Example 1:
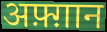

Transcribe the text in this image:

अफ़्ग़ान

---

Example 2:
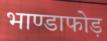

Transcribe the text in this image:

भाण्डाफोड़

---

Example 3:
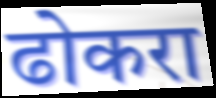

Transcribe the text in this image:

ढोकरा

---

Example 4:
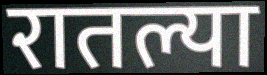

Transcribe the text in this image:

रातल्या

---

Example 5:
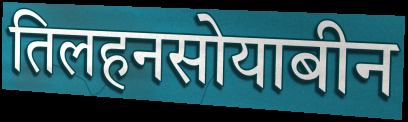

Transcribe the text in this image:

तिलहनसोयाबीन